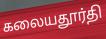
கலையதூர்தி